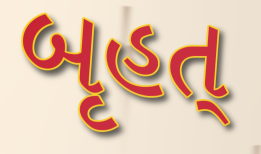
બૃહત્